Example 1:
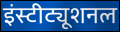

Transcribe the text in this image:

इंस्टीट्यूशनल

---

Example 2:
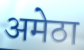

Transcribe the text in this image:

अमेठा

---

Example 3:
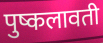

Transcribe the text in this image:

पुष्कलावती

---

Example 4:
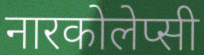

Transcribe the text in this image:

नारकोलेप्सी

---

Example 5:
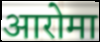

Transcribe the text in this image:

आरोमा